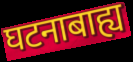
घटनाबाह्य